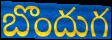
బొందుగ